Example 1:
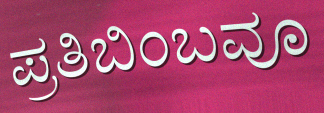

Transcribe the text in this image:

ಪ್ರತಿಬಿಂಬವೂ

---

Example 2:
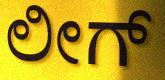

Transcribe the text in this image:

ಲೀಗ್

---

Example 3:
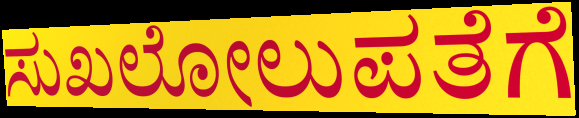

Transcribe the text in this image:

ಸುಖಲೋಲುಪತೆಗೆ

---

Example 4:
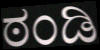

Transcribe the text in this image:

ಠಂಡಿ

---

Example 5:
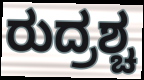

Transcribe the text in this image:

ರುದ್ರಶ್ಚ